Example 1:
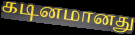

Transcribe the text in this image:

கடினமானது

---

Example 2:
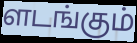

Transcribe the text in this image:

ளடங்கும்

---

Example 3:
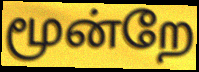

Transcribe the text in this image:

மூன்றே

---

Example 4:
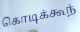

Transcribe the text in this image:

கொடிக்கூந்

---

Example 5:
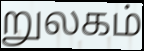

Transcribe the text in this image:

றுலகம்